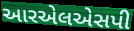
આરએલએસપી